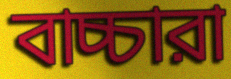
বাচ্চারা